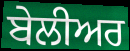
ਬੇਲੀਅਰ